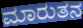
ಮಾರುತನ